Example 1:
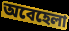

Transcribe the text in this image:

অবেহেলা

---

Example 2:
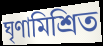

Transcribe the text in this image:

ঘৃণামিশ্রিত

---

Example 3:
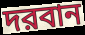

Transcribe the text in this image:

দরবান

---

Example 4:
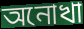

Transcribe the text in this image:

অনোখা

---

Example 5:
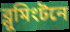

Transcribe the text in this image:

ব্লুমিংটনে